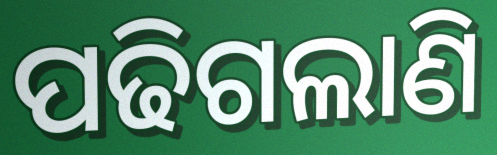
ପଢିଗଲାଣି